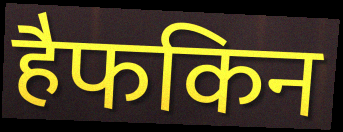
हैफकिन